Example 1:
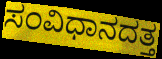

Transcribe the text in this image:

ಸಂವಿಧಾನದತ್ತ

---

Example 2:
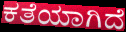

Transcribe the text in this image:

ಕತೆಯಾಗಿದೆ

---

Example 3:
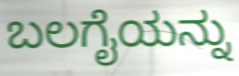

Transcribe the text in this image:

ಬಲಗೈಯನ್ನು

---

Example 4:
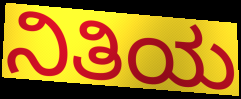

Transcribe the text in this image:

ನಿತಿಯ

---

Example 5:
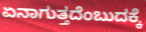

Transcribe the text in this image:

ಏನಾಗುತ್ತದೆಂಬುದಕ್ಕೆ